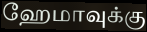
ஹேமாவுக்கு